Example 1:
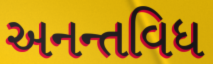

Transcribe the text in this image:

અનન્તવિધ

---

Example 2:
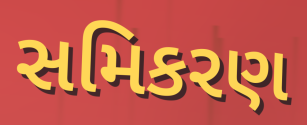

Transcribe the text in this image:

સમિકરણ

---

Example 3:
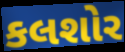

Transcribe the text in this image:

કલશોર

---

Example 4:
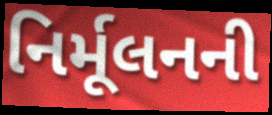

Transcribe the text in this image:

નિર્મૂલનની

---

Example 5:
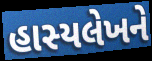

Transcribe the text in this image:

હાસ્યલેખને